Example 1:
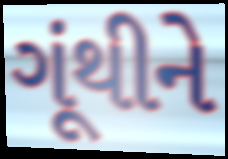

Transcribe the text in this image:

ગૂંથીને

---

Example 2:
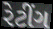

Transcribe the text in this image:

રેટીંગ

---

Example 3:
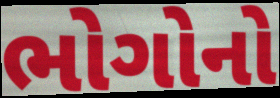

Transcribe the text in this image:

ભોગોનો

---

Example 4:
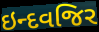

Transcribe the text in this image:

ઇન્દવજિર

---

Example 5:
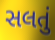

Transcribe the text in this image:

સલતું